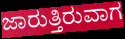
ಜಾರುತ್ತಿರುವಾಗ